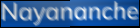
Nayananche